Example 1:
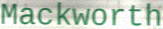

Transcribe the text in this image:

Mackworth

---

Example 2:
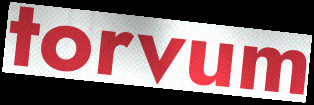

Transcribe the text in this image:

torvum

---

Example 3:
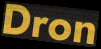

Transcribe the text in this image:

Dron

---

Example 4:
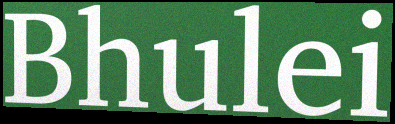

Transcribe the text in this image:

Bhulei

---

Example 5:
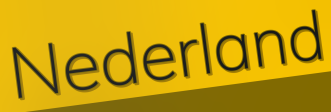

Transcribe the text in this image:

Nederland